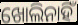
ଖୋଲିନାହିଁ